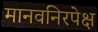
मानवनिरपेक्ष